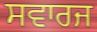
ਸਵਾਰਜ